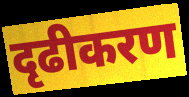
दृढीकरण